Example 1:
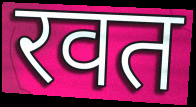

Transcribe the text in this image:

रवत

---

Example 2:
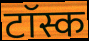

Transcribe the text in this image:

टॉस्‍क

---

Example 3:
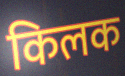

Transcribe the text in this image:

किलक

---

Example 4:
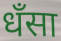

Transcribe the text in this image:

धँसा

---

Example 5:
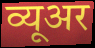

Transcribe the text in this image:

व्यूअर